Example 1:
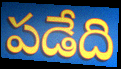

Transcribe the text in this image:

పడేది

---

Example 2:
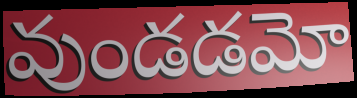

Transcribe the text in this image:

వుండడమో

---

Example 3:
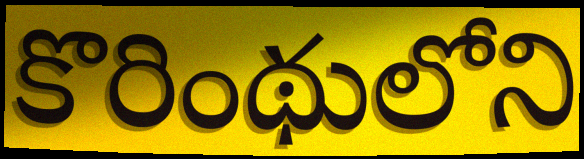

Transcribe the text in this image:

కొరింథులోని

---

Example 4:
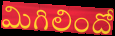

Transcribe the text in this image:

మిగిలిందో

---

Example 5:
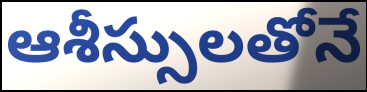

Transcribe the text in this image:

ఆశీస్సులతోనే